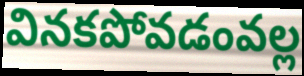
వినకపోవడంవల్ల